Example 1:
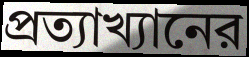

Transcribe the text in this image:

প্রত্যাখ্যানের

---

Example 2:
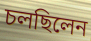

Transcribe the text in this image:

চলছিলেন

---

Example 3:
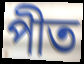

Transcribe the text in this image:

পীত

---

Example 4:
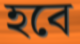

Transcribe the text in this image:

হবে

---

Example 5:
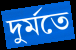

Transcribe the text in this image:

দুর্মতে